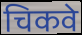
चिकवे